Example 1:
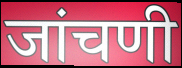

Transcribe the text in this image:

जांचणी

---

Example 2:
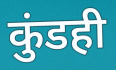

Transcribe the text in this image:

कुंडही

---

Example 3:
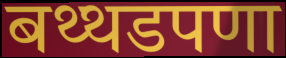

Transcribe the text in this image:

बथ्थडपणा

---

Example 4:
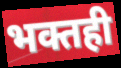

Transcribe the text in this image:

भक्तही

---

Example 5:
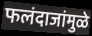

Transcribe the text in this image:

फलंदाजांमुळे